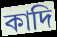
কাদি